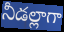
నీడల్లాగా